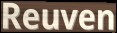
Reuven